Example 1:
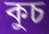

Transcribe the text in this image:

কুচ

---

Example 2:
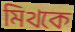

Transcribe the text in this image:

মিথকে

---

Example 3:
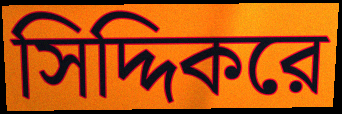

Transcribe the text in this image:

সিদ্দিকরে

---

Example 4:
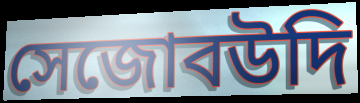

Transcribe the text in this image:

সেজোবউদি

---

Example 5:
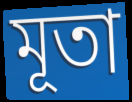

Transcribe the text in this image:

মূতা